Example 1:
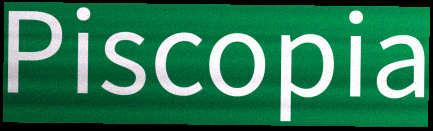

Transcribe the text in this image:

Piscopia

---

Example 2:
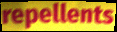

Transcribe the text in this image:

repellents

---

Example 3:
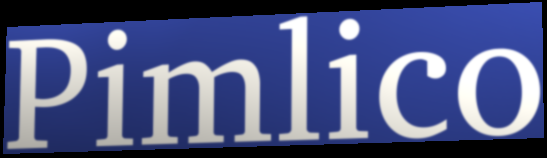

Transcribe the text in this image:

Pimlico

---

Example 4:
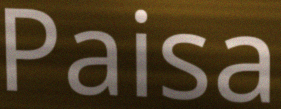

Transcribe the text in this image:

Paisa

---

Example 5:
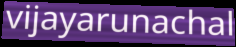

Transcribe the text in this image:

vijayarunachal